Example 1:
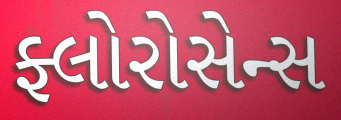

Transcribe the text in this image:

ફ્લોરોસેન્સ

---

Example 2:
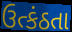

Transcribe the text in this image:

ઉત્કંઠતા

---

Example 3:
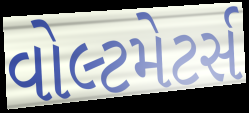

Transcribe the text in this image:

વોલ્ટમેટર્સ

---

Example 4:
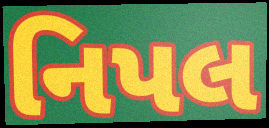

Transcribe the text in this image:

નિપલ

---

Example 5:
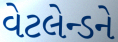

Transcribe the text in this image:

વેટલેન્ડને